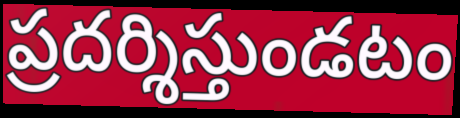
ప్రదర్శిస్తుండటం